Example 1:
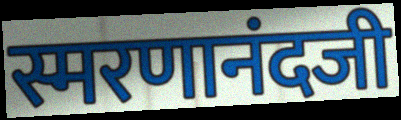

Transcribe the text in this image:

स्मरणानंदजी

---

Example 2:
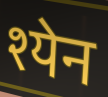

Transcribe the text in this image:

श्येन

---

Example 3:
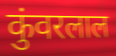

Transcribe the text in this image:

कुंवरलाल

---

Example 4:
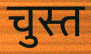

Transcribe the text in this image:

चुस्त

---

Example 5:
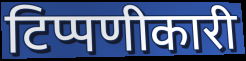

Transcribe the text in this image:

टिप्पणीकारी